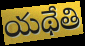
యథేతి